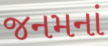
જનમનાં